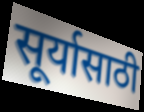
सूर्यासाठी